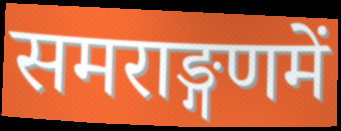
समराङ्गणमें